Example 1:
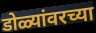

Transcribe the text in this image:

डोळ्यांवरच्या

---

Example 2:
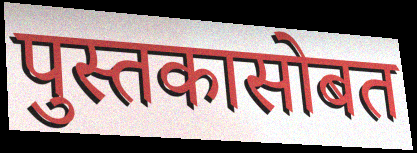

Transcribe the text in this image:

पुस्तकासोबत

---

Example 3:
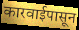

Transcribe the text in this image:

कारवाईपासून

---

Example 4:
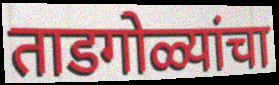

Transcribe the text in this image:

ताडगोळ्यांचा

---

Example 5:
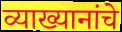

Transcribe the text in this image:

व्याख्यानांचे